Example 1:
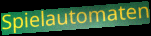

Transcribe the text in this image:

Spielautomaten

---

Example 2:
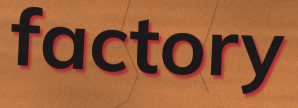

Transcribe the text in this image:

factory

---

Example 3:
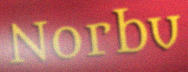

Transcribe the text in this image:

Norbu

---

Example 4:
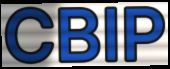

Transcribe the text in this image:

CBIP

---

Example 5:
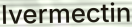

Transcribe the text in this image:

Ivermectin